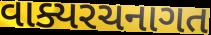
વાક્યરચનાગત